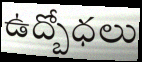
ఉద్బోధలు